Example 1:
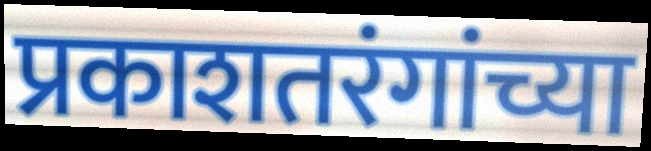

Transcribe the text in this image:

प्रकाशतरंगांच्या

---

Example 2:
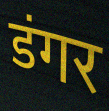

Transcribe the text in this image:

डंगर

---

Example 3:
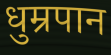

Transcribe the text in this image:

धुम्रपान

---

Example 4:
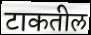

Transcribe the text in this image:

टाकतील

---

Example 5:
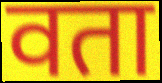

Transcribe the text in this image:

वता